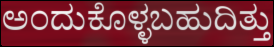
ಅಂದುಕೊಳ್ಳಬಹುದಿತ್ತು